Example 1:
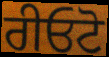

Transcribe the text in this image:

ਰੀਓਟੋ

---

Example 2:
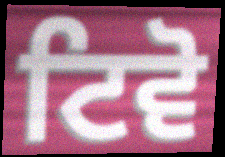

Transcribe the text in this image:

ਟਿਵੋ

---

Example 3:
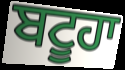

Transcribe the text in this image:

ਬਟੂਹਾ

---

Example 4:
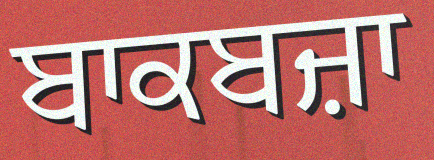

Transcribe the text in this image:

ਬਾਕਬਜ਼ਾ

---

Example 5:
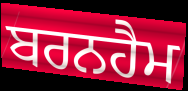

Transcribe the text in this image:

ਬਰਨਹੈਮ